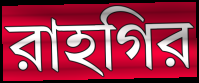
রাহগির